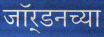
जॉर्डनच्या